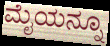
ಮೈಯನ್ನೂ